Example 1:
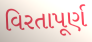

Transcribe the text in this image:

વિરતાપૂર્ણ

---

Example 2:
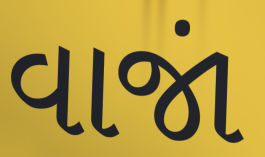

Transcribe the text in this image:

વાજાં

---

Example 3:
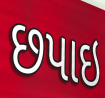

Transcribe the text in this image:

છપાઇ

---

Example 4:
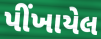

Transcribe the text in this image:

પીંખાયેલ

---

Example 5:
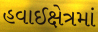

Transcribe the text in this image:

હવાઈક્ષેત્રમાં